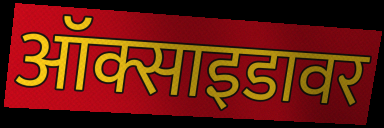
ऑक्साइडावर